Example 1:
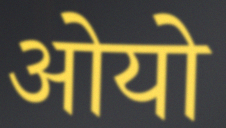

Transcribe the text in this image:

ओयो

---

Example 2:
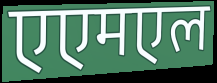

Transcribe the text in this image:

एएमएल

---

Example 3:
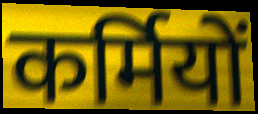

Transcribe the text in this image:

कर्मियों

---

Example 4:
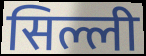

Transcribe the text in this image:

सिल्ली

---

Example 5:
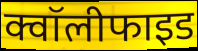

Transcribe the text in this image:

क्वॉलीफाइड